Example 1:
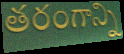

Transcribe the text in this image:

తరంగాన్ని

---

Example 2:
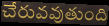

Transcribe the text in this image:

చేరువవుతుంది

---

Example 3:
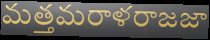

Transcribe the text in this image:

మత్తమరాళరాజజా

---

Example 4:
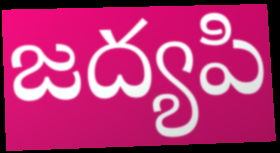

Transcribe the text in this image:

జద్యపి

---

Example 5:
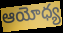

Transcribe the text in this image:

ఆయోధ్య